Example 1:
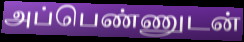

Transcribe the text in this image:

அப்பெண்ணுடன்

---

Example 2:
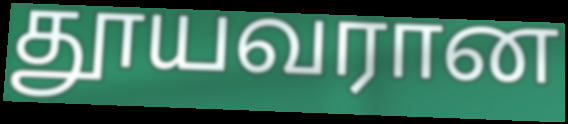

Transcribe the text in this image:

தூயவரான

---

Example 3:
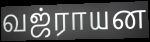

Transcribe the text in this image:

வஜ்ராயன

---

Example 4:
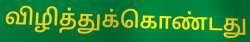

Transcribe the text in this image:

விழித்துக்கொண்டது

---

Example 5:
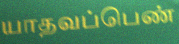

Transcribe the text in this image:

யாதவப்பெண்